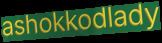
ashokkodlady